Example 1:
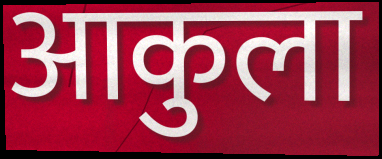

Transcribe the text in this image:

आकुला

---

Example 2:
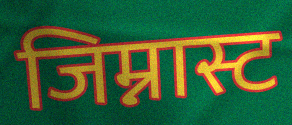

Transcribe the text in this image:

जिम्नास्ट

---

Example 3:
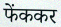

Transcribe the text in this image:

फेंककर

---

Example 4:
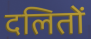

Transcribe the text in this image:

दलितों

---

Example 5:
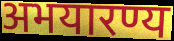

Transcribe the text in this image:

अभयारण्य